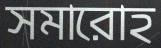
সমারোহ